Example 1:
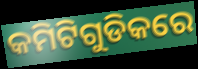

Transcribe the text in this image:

କମିଟିଗୁଡିକରେ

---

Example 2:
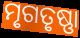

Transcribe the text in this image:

ମୃଗତୃଷ୍ଣା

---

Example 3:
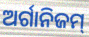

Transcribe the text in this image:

ଅର୍ଗାନିଜମ୍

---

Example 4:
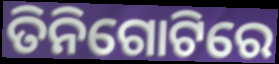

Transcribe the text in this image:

ତିନିଗୋଟିରେ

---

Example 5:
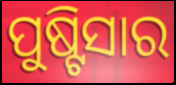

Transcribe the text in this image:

ପୁଷ୍ଟିସାର